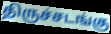
திருச்சடங்கு